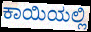
ಕಾಯಿಯಲ್ಲಿ